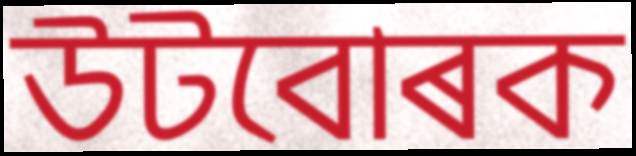
উটবোৰক